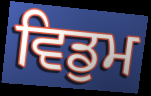
ਵਿਡੁਮ